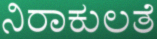
ನಿರಾಕುಲತೆ